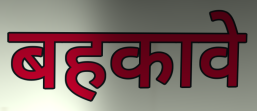
बहकावे